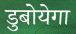
डुबोयेगा